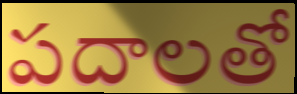
పదాలతో